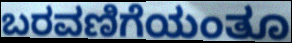
ಬರವಣಿಗೆಯಂತೂ